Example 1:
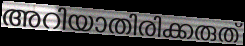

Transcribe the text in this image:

അറിയാതിരിക്കരുത്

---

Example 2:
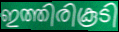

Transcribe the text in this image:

ഇത്തിരികൂടി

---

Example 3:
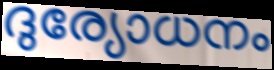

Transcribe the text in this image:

ദുര്യോധനം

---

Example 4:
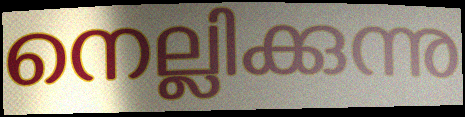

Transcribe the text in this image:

നെല്ലിക്കുന്നു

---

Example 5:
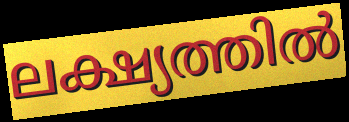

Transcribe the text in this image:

ലക്ഷ്യത്തിൽ